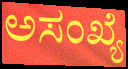
ಅಸಂಖ್ಯೆ